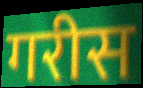
गरीस